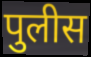
पुलीस